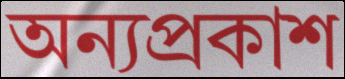
অন্যপ্রকাশ